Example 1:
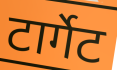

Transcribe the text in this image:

टार्गेट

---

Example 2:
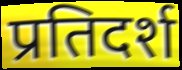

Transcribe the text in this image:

प्रतिदर्श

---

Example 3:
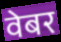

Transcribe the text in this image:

वेबर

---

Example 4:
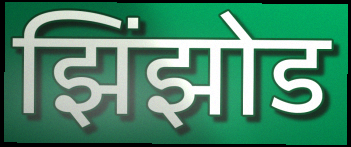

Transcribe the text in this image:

झिंझोड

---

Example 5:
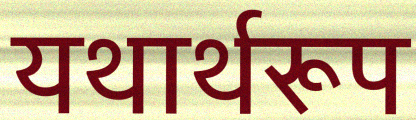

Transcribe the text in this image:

यथार्थरूप